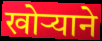
खोऱ्याने